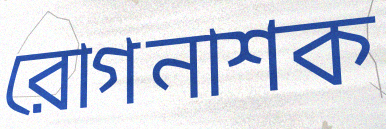
রোগনাশক